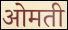
ओमती